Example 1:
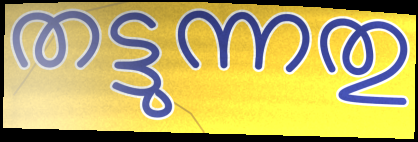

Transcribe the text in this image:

തട്ടുന്നതു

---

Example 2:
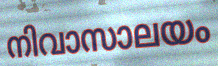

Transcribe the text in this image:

നിവാസാലയം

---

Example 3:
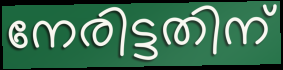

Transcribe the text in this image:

നേരിട്ടതിന്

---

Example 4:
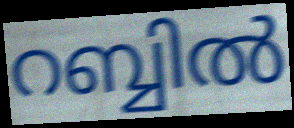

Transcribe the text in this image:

റബ്ബിൽ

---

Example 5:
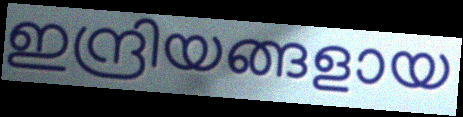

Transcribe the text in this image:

ഇന്ദ്രിയങ്ങളായ